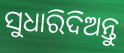
ସୁଧାରିଦିଅନ୍ତୁ